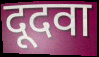
दूदवा